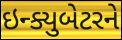
ઇન્ક્યુબેટરને